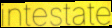
intestate